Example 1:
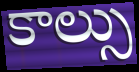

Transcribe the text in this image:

కాల్సు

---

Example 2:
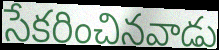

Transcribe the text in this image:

సేకరించినవాడు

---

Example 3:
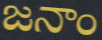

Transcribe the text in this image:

జనాం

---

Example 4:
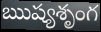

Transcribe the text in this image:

ఋష్యశృంగ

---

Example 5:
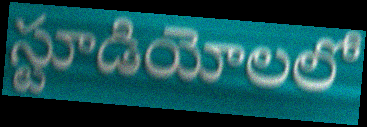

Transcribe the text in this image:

స్టూడియోలలో